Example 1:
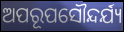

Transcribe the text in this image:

ଅପରୂପସୌନ୍ଦର୍ଯ୍ୟ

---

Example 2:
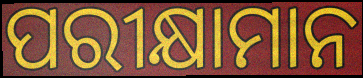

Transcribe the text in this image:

ପରୀକ୍ଷାମାନ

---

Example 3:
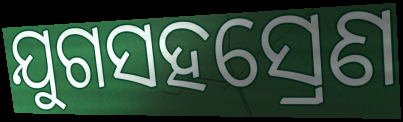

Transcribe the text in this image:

ଯୁଗସହସ୍ରେଣ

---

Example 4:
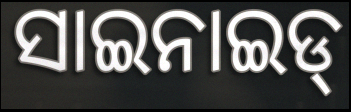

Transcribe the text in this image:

ସାଇନାଇଡ୍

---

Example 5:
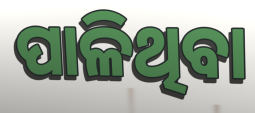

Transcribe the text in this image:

ପାଳିଥିବା